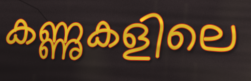
കണ്ണുകളിലെ